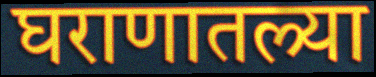
घराणातल्या